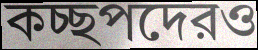
কচ্ছপদেরও